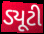
ડ્યૂટી